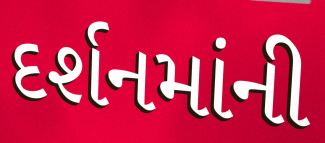
દર્શનમાંની